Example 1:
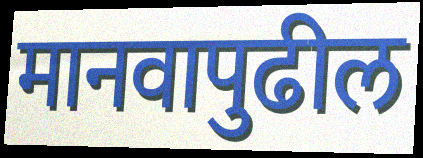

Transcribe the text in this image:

मानवापुढील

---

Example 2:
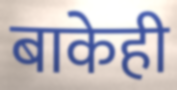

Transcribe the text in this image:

बाकेही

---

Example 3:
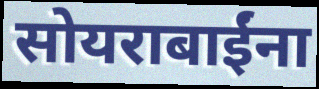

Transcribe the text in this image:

सोयराबाईंना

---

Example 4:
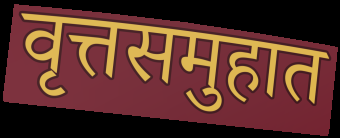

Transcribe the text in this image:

वृत्तसमुहात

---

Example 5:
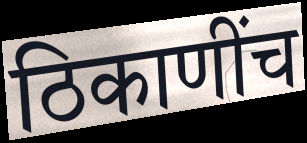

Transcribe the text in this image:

ठिकाणींच